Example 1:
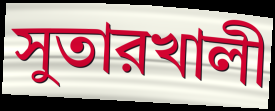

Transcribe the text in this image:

সুতারখালী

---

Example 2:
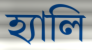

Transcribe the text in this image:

হ্যালি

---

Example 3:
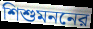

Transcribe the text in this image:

শিশুমননের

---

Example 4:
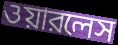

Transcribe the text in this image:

ওয়ারলেস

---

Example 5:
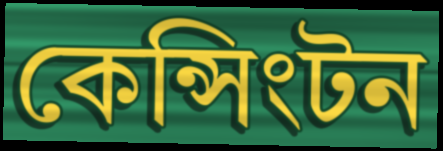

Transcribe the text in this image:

কেন্সিংটন